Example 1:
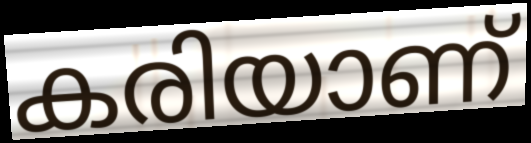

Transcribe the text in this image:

കരിയാണ്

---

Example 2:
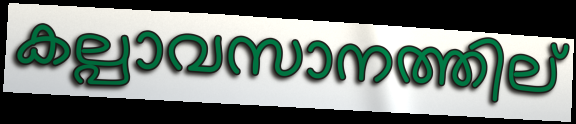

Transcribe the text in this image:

കല്പാവസാനത്തില്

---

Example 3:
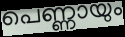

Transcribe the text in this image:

പെണ്ണായും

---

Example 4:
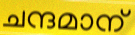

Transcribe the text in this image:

ചന്ദമാന്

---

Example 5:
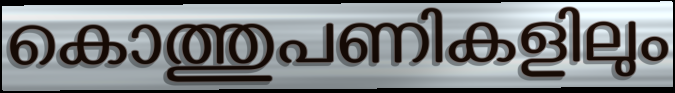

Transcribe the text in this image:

കൊത്തുപണികളിലും